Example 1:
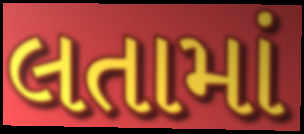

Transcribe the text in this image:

લતામાં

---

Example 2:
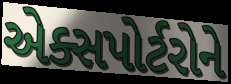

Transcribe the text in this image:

એક્સપોર્ટરોને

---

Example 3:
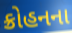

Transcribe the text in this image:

ક્રોહનના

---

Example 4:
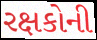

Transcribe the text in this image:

રક્ષકોની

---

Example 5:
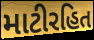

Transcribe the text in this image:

માટીરહિત